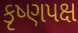
કૃષ્ણપક્ષ